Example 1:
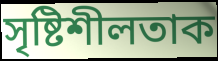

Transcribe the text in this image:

সৃষ্টিশীলতাক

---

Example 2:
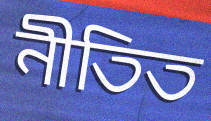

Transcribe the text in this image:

নীতিত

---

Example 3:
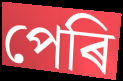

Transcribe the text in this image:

পেৰি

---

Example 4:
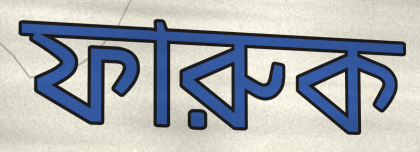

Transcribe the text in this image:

ফাৰুক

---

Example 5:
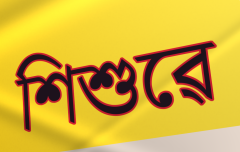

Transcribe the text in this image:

শিশুৱে